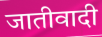
जातीवादी